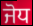
ਜੋਧ